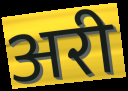
अरी